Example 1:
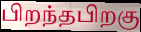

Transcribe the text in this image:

பிறந்தபிறகு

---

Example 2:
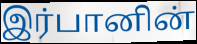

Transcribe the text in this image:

இர்பானின்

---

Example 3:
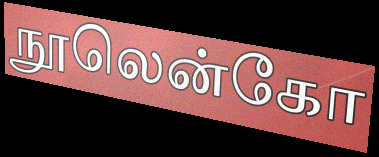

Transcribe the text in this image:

நூலென்கோ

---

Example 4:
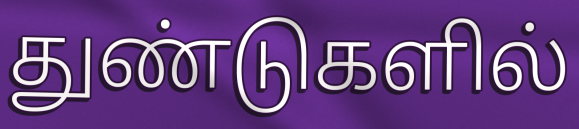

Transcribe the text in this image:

துண்டுகளில்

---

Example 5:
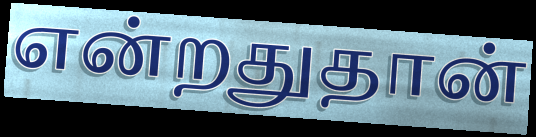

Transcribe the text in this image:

என்றதுதான்